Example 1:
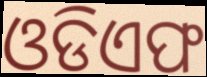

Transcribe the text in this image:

ଓଡିଏଫ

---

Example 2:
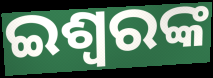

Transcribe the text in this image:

ଇଶ୍ୱରଙ୍କ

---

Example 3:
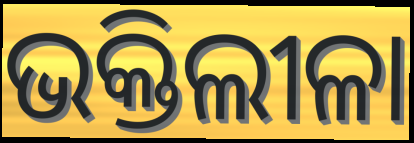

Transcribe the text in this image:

ଭକ୍ତିଲୀଳା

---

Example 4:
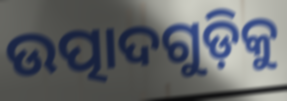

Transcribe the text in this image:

ଉତ୍ପାଦଗୁଡ଼ିକୁ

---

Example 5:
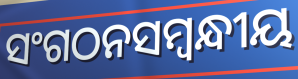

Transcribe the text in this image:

ସଂଗଠନସମ୍ବନ୍ଧୀୟ